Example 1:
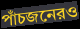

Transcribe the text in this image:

পাঁচজনেরও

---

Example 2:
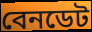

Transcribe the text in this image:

বেনডেট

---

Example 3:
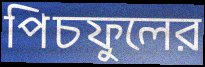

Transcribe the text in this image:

পিচফুলের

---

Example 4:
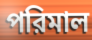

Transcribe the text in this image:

পরিমাল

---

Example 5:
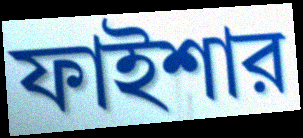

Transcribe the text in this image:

ফাইশার